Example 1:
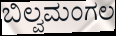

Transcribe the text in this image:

ಬಿಲ್ವಮಂಗಲ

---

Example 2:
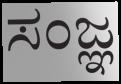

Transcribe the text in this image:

ಸಂಜ್ಞ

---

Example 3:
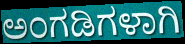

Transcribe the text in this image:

ಅಂಗಡಿಗಳಾಗಿ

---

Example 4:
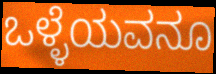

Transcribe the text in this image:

ಒಳ್ಳೆಯವನೂ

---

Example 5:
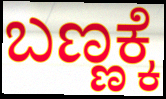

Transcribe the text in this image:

ಬಣ್ಣಕ್ಕೆ